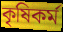
কৃষিকর্ম